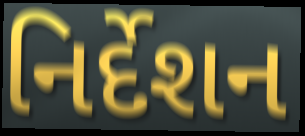
નિર્દેશન